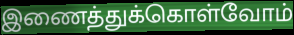
இணைத்துக்கொள்வோம்